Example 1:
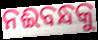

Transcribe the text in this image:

ନଈବନ୍ଧକୁ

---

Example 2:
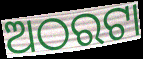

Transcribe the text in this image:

ଅଠରଟା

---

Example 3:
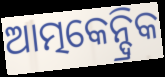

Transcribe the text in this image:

ଆତ୍ମକେନ୍ଦ୍ରିକ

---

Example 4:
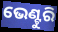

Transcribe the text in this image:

ଭେଣ୍ଟୁରି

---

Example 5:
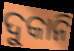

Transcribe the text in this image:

ଦୁକାନି